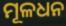
ମୂଳଧନ